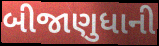
બીજાણુધાની